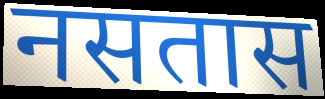
नसतास